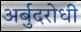
अर्बुदरोधी